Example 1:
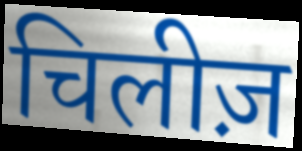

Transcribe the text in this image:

चिलीज़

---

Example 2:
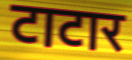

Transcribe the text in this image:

टाटार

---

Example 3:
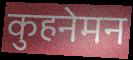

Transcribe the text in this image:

कुहनेमन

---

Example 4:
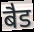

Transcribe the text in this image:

बैड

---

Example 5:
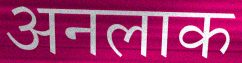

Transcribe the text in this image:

अनलाक